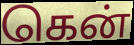
கென்